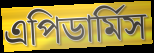
এপিডার্মিস